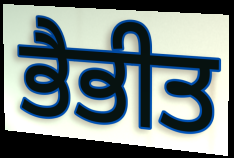
ਭੈਭੀਤ